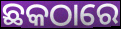
ଛକଠାରେ